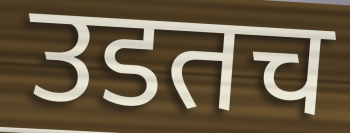
उडतच